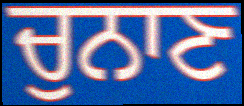
ਚੁਨਾਣ